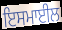
ਇਸਮਾਈਲ